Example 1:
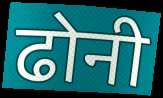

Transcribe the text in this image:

ढोनी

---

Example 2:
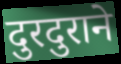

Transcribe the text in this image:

दुरदुराने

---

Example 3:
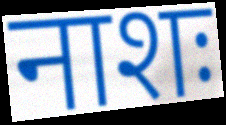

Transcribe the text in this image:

नाशः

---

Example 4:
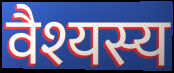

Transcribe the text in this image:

वैश्यस्य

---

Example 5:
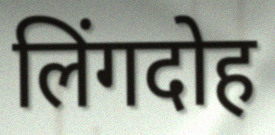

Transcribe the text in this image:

लिंगदोह